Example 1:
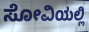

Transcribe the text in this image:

ಸೋವಿಯಲ್ಲಿ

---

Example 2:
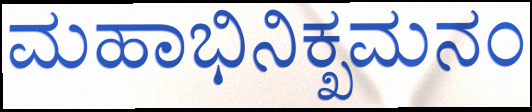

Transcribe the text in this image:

ಮಹಾಭಿನಿಕ್ಖಮನಂ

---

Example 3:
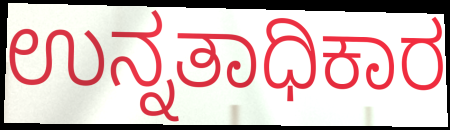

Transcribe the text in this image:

ಉನ್ನತಾಧಿಕಾರ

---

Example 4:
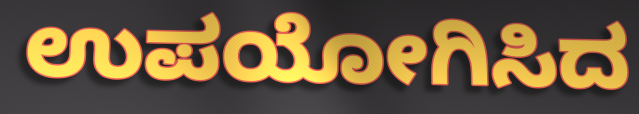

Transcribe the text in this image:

ಉಪಯೋಗಿಸಿದ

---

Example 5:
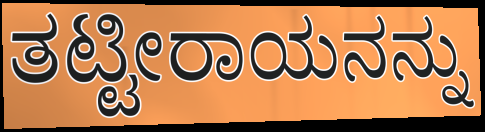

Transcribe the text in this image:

ತಟ್ಟೀರಾಯನನ್ನು